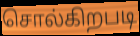
சொல்கிறபடி